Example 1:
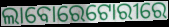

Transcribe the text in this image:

ଲାବୋରେଟୋରୀରେ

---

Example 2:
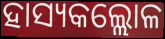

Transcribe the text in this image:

ହାସ୍ୟକଲ୍ଲୋଳ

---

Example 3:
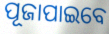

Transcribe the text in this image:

ପୂଜାପାଇବେ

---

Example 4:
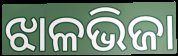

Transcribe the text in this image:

ଝାଳଭିଜା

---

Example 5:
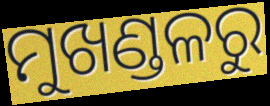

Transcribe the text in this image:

ମୁଖଣ୍ଡଳରୁ